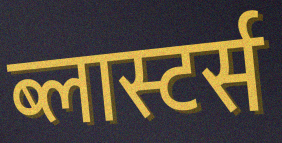
ब्लास्टर्स